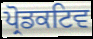
ਪ੍ਰੋਡਕਟਿਵ